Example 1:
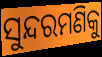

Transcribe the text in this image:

ସୁନ୍ଦରମଣିକୁ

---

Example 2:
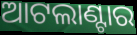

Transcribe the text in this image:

ଆଟଲାଣ୍ଟାର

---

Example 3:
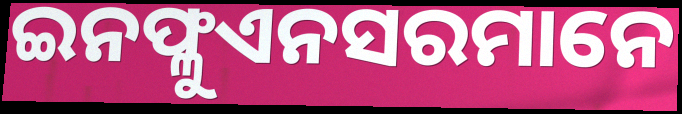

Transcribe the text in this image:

ଇନଫ୍ଳୁଏନସରମାନେ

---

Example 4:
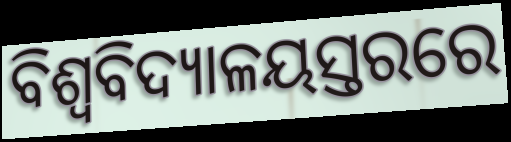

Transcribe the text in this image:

ବିଶ୍ୱବିଦ୍ୟାଳୟସ୍ତରରେ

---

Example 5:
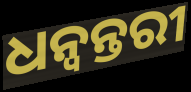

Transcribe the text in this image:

ଧନ୍ବନ୍ତରୀ